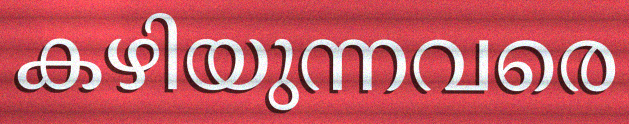
കഴിയുന്നവരെ